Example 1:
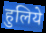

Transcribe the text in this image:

हुलिये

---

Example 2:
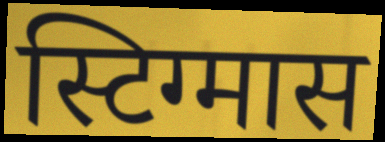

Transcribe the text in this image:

स्टिग्मास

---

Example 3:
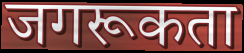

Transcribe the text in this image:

जगरूकता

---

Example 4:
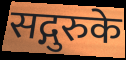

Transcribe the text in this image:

सद्गुरुके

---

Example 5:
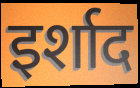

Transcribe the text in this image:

इर्शाद